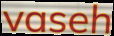
vaseh